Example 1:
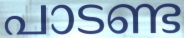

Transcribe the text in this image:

പാടണ്ട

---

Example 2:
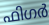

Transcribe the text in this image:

ഫിഗർ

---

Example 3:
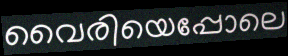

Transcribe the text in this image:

വൈരിയെപ്പോലെ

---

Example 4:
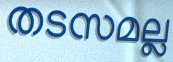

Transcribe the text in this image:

തടസമല്ല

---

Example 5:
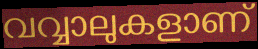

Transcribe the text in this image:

വവ്വാലുകളാണ്